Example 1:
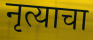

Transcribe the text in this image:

नृत्याचा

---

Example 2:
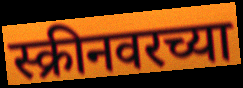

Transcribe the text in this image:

स्क्रीनवरच्या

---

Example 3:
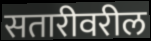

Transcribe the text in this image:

सतारीवरील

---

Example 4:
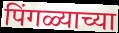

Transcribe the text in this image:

पिंगळ्याच्या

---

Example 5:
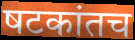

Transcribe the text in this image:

षटकांतच